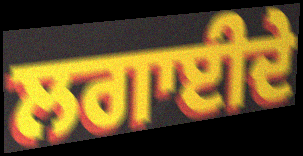
ਲਗਾਈਦੇ